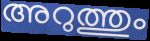
അറുത്തും